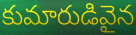
కుమారుడివైన